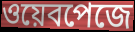
ওয়েবপেজে